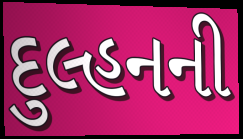
દુલ્હનની